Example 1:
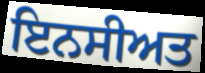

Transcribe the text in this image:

ਇਨਸੀਅਤ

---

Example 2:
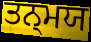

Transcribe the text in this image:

ਤਨ੍ਮਯ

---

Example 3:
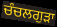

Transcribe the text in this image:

ਚੰਚਲਗੁੜਾ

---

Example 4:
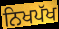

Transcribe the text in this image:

ਨਿਖਪੱਖ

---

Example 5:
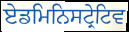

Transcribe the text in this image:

ਏਡਮਿਨਿਸਟ੍ਰੇਟਿਵ